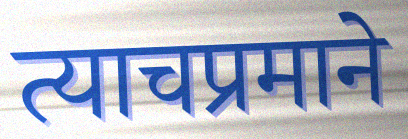
त्याचप्रमाने